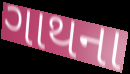
ગાથના